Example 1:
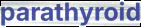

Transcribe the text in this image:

parathyroid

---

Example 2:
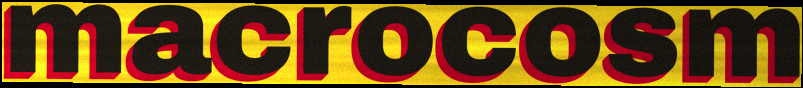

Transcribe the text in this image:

macrocosm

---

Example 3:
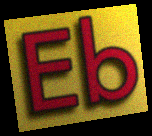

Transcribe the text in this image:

Eb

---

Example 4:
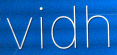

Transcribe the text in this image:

vidh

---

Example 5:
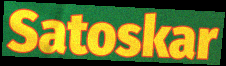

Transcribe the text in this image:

Satoskar